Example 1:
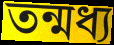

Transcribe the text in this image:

তন্মধ্য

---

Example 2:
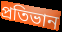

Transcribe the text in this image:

প্রতিভান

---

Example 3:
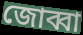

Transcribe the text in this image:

জোব্বা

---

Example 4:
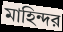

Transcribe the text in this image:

মাহিন্দর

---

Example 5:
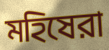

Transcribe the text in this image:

মহিষেরা